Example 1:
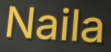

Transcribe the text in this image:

Naila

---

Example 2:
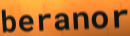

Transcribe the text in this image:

beranor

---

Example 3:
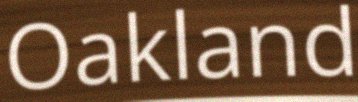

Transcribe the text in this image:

Oakland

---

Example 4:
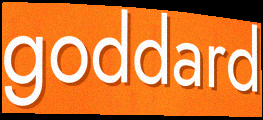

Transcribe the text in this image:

goddard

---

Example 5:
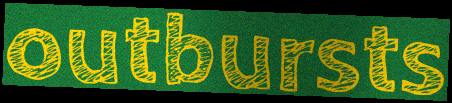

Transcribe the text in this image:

outbursts